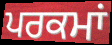
ਪਰਕਮਾਂ